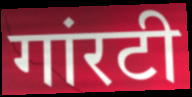
गांरटी